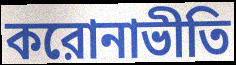
করোনাভীতি